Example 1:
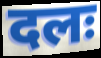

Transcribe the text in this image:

दलः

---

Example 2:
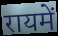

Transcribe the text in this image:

रायमें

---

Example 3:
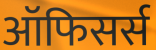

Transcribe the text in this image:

ऑफिसर्स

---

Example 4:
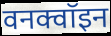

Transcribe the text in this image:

वनक्वॉइन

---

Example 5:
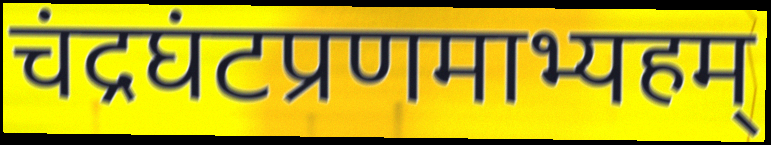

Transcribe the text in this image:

चंद्रघंटप्रणमाभ्यहम्